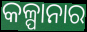
କଳ୍ପାନାର